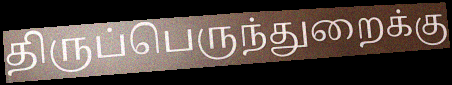
திருப்பெருந்துறைக்கு